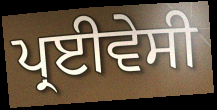
ਪ੍ਰਈਵੇਸੀ